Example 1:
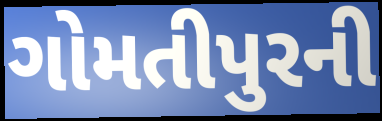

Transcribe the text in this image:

ગોમતીપુરની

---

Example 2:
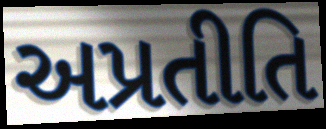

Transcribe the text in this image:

અપ્રતીતિ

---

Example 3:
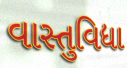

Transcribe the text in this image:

વાસ્તુવિદ્યા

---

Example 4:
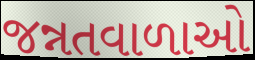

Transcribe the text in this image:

જન્નતવાળાઓ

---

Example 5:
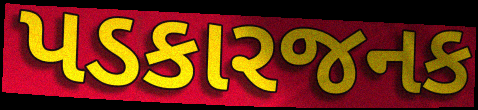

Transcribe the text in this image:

પડકારજનક